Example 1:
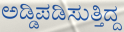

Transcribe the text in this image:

ಅಡ್ಡಿಪಡಿಸುತ್ತಿದ್ದ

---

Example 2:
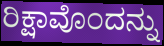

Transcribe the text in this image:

ರಿಕ್ಷಾವೊಂದನ್ನು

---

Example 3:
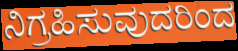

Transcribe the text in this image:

ನಿಗ್ರಹಿಸುವುದರಿಂದ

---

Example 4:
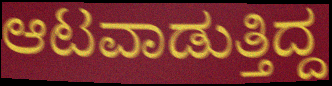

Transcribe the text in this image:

ಆಟವಾಡುತ್ತಿದ್ದ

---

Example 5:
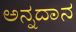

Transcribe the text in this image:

ಅನ್ನದಾನ